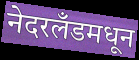
नेदरलँडमधून